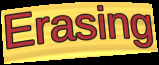
Erasing